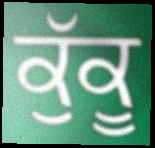
ਕੁੱਕੂ